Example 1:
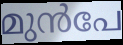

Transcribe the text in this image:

മുൻപേ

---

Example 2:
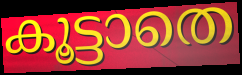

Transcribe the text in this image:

കൂട്ടാതെ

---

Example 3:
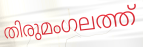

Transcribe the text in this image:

തിരുമംഗലത്ത്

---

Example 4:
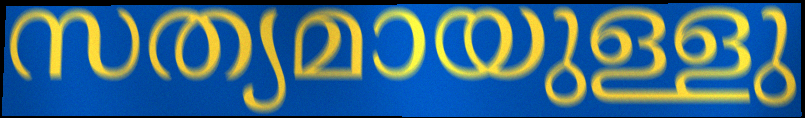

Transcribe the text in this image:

സത്യമായുള്ളു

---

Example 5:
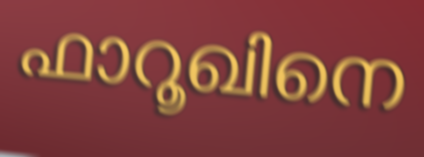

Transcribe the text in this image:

ഫാറൂഖിനെ